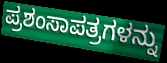
ಪ್ರಶಂಸಾಪತ್ರಗಳನ್ನು